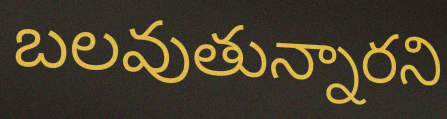
బలవుతున్నారని